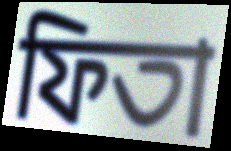
ফিতা